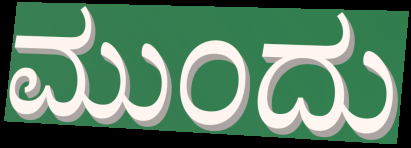
ಮುಂದು